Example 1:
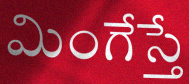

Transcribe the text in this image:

మింగేస్తే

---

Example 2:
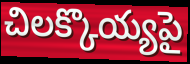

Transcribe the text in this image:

చిలక్కొయ్యపై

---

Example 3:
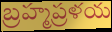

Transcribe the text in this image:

బ్రహ్మప్రళయ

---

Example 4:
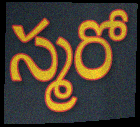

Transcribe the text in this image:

స్మరో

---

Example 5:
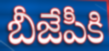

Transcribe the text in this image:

బీజేపీకి